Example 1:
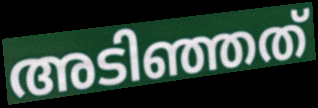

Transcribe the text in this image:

അടിഞ്ഞത്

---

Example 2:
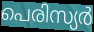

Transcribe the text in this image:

പെരിസ്യർ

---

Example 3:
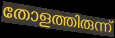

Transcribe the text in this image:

തോളത്തിരുന്ന്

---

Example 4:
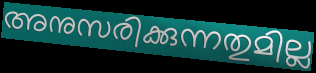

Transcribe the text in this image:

അനുസരിക്കുന്നതുമില്ല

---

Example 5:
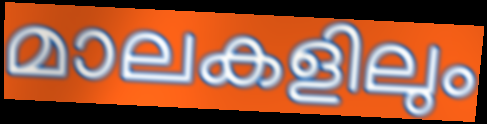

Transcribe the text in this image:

മാലകളിലും